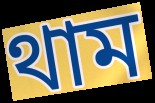
থাম